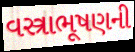
વસ્ત્રાભૂષણની